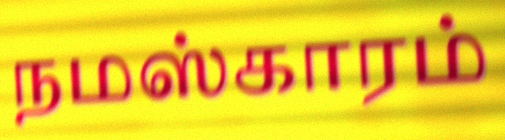
நமஸ்காரம்